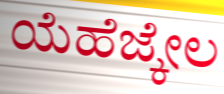
ಯೆಹೆಜ್ಕೇಲ